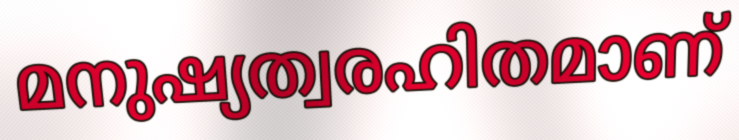
മനുഷ്യത്വരഹിതമാണ്